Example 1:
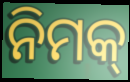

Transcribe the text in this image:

ନିମକ୍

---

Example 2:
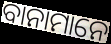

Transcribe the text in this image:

ବାନାମାନେ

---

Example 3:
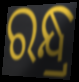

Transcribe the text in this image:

ରନ୍ଧ୍ର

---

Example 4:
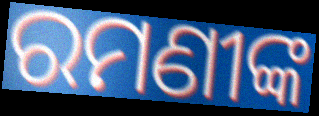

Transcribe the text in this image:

ରମଣୀଙ୍କ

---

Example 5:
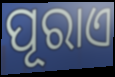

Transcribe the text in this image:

ପୂରାଏ